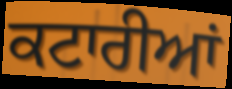
ਕਟਾਰੀਆਂ